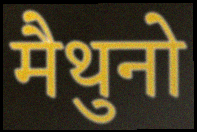
मैथुनो